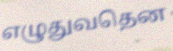
எழுதுவதென